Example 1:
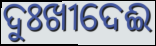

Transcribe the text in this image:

ଦୁଃଖୀଦେଈ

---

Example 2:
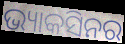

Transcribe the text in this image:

ଭ୍ୟାକସିନର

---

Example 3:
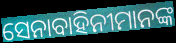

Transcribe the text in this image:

ସେନାବାହିନୀମାନଙ୍କ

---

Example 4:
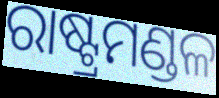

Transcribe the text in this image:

ରାଷ୍ଟ୍ରମଣ୍ଡଳ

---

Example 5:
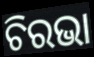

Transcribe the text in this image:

ଚିରଭା